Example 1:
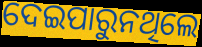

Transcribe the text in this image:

ଦେଇପାରୁନଥିଲେ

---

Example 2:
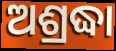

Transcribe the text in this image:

ଅଶ୍ରଦ୍ଧା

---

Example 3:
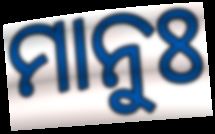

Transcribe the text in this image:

ମାନୁଃ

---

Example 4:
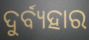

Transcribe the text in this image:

ଦୁର୍ବ୍ୟହାର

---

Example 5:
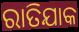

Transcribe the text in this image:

ରାତିଯାକ